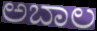
ಅಬಾಲ